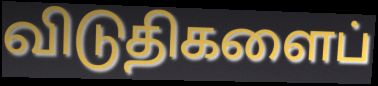
விடுதிகளைப்